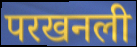
परखनली